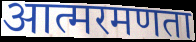
आत्मरमणता